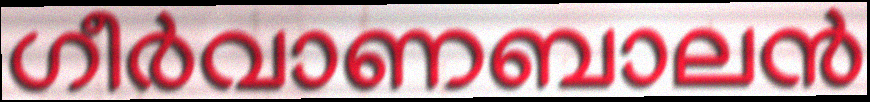
ഗീർവാണബാലൻ